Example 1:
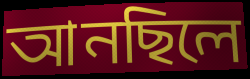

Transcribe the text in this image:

আনছিলে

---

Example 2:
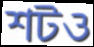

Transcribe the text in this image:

শটও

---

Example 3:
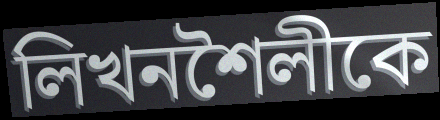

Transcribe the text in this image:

লিখনশৈলীকে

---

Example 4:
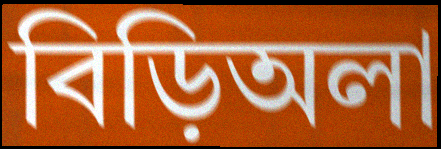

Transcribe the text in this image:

বিড়িঅলা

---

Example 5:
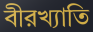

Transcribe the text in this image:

বীরখ্যাতি